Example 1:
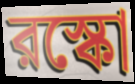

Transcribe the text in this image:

রস্কো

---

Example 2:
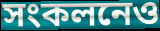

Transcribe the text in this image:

সংকলনেও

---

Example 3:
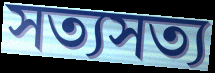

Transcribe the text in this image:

সত্যসত্য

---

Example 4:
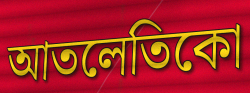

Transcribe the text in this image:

আতলেতিকো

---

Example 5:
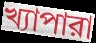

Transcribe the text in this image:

খ্যাপারা